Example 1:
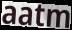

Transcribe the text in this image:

aatm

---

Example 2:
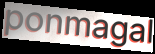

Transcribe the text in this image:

ponmagal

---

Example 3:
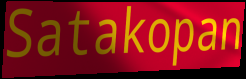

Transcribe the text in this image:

Satakopan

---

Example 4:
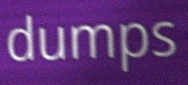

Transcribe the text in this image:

dumps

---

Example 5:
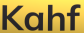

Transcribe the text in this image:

Kahf